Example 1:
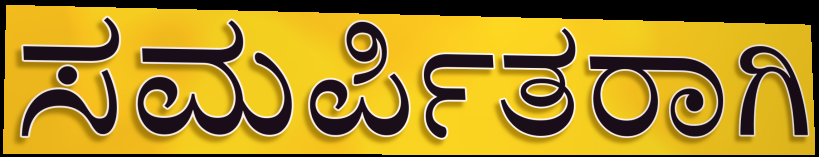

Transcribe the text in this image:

ಸಮರ್ಪಿತರಾಗಿ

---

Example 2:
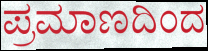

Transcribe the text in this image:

ಪ್ರಮಾಣದಿಂದ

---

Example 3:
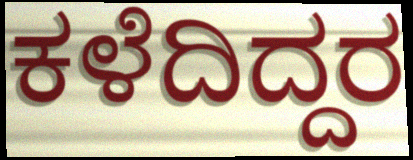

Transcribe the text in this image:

ಕಳೆದಿದ್ದರ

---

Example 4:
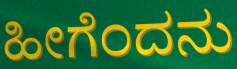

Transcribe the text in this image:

ಹೀಗೆಂದನು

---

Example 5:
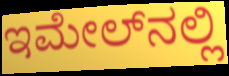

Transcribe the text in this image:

ಇಮೇಲ್‌ನಲ್ಲಿ